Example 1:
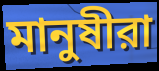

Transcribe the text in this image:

মানুষীরা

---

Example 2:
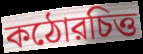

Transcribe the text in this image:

কঠোরচিত্ত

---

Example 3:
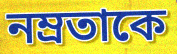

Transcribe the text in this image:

নম্রতাকে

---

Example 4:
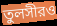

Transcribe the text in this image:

তুলসীরও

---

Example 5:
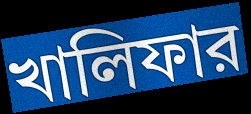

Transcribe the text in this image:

খালিফার